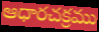
ఆధారచక్రము